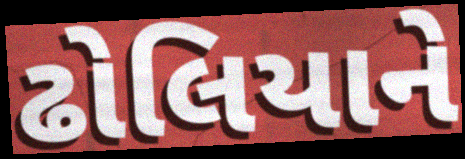
ઢોલિયાને